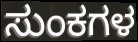
ಸುಂಕಗಳ